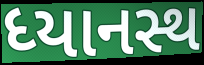
ધ્યાનસ્થ